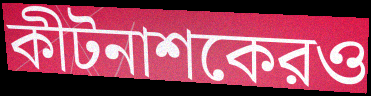
কীটনাশকেরও